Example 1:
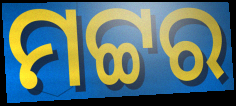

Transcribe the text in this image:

ମଟ୍ଟର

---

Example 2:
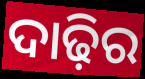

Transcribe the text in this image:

ଦାଢ଼ିର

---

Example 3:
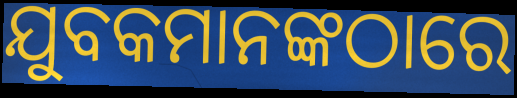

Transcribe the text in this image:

ଯୁବକମାନଙ୍କଠାରେ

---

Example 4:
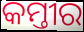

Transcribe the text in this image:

କମ୍ତୀର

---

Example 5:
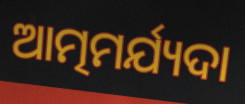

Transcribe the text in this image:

ଆତ୍ମମର୍ଯ୍ୟଦା